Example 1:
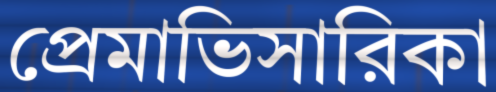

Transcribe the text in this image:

প্রেমাভিসারিকা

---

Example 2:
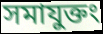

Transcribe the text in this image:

সমাযুক্তং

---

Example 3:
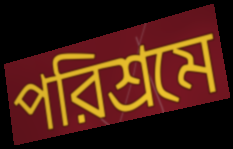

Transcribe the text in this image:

পরিশ্রমে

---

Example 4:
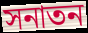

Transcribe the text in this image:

সনাতন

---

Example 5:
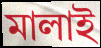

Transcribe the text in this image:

মালাই